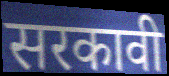
सरकावी